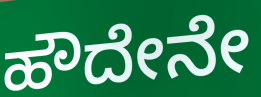
ಹೌದೇನೇ